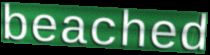
beached